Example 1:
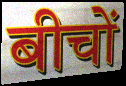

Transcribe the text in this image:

बीचों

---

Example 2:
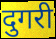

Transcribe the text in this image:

दुगरी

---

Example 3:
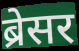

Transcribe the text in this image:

ब्रेसर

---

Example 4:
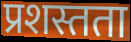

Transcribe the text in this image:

प्रशस्तता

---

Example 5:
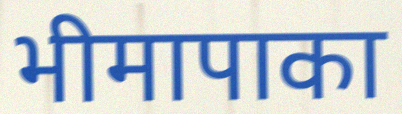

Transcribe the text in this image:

भीमापाका